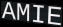
AMIE